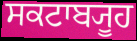
ਸਕਟਾਬ੍ਯੂਹ